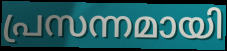
പ്രസന്നമായി